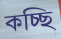
কচ্ছি